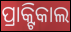
ପ୍ରାକ୍ଟିକାଲ